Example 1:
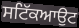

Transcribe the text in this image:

ਸਟਿੱਕਆਉਟ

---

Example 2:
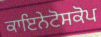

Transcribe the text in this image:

ਕਾਇਨੇਟੋਸਕੋਪ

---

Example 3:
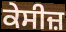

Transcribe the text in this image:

ਕੇਸੀਜ਼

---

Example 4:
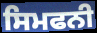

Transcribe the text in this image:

ਸਿਮਫਨੀ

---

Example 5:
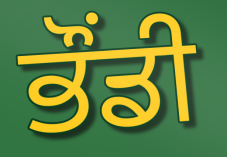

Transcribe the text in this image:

ਭੌਂਡੀ